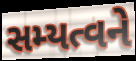
સમ્યત્વને